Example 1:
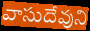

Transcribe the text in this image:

వాసుదేవుని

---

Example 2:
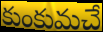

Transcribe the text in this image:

కుంకుమచే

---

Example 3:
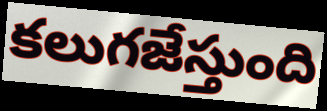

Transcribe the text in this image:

కలుగజేస్తుంది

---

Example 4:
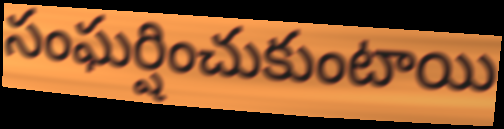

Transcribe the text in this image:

సంఘర్షించుకుంటాయి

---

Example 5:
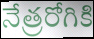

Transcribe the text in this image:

నేత్రరోగికి